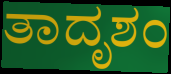
ತಾದೃಶಂ